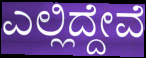
ಎಲ್ಲಿದ್ದೇವೆ